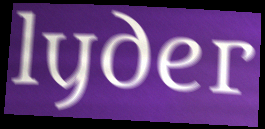
lyder